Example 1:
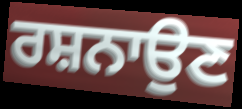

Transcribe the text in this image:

ਰਸ਼ਨਾਉਣ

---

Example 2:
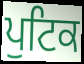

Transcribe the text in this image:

ਪੁਟਿਕ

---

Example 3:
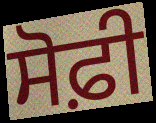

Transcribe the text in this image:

ਸੋਫ਼ੀ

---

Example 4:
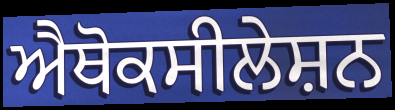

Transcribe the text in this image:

ਐਥੋਕਸੀਲੇਸ਼ਨ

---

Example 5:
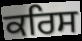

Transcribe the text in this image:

ਕਰਿਸ